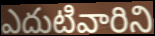
ఎదుటివారిని